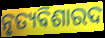
ନୃତ୍ୟବିଶାରଦ